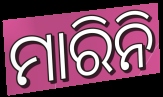
ମାରିନି